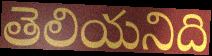
తెలియనిది